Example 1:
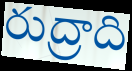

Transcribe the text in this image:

రుద్రాది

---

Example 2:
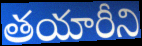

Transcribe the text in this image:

తయారీని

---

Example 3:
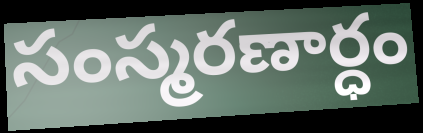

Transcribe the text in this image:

సంస్మరణార్ధం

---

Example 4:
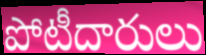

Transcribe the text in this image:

పోటీదారులు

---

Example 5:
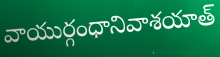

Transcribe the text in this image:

వాయుర్గంధానివాశయాత్